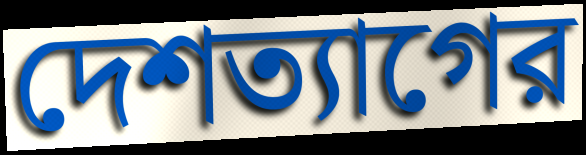
দেশত্যাগের